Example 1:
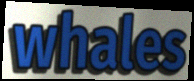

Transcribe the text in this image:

whales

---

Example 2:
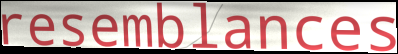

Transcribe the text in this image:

resemblances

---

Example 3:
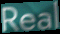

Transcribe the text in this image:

Real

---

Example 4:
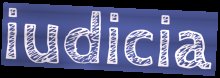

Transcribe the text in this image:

iudicia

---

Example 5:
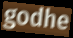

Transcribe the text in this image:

godhe